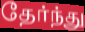
தேர்ந்து